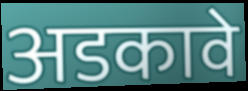
अडकावे